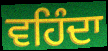
ਵਹਿੰਦਾ